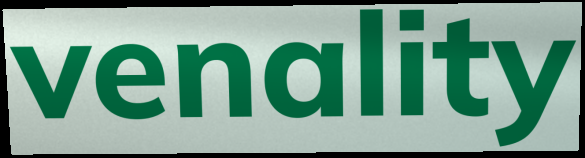
venality